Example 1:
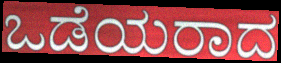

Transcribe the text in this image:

ಒಡೆಯರಾದ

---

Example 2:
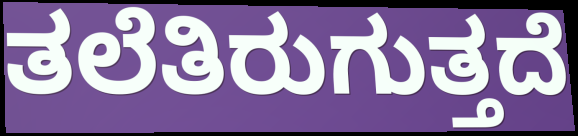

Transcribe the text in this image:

ತಲೆತಿರುಗುತ್ತದೆ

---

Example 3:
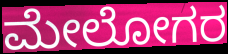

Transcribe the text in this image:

ಮೇಲೋಗರ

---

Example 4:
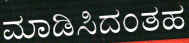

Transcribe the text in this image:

ಮಾಡಿಸಿದಂತಹ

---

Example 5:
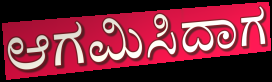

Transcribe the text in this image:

ಆಗಮಿಸಿದಾಗ